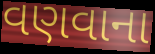
વણવાના